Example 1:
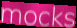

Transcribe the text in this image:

mocks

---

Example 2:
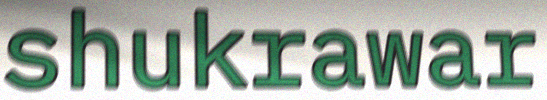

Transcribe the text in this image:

shukrawar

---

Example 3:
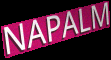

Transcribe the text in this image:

NAPALM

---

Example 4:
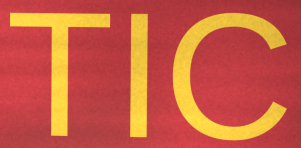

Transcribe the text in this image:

TIC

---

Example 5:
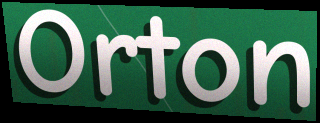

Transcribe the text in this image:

Orton